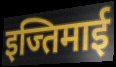
इज्तिमाई